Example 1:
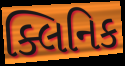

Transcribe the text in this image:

ક્લિનિક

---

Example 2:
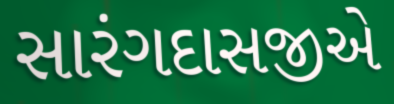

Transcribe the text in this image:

સારંગદાસજીએ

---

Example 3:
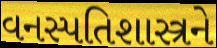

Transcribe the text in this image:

વનસ્પતિશાસ્ત્રને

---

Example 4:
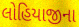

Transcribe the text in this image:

લોહિયાજીના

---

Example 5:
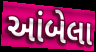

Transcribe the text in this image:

આંબેલા